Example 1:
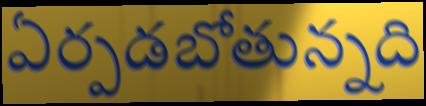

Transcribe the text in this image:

ఏర్పడబోతున్నది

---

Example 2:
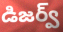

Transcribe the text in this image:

డిజర్వ్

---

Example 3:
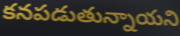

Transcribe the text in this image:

కనపడుతున్నాయని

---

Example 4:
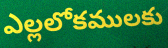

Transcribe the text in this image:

ఎల్లలోకములకు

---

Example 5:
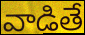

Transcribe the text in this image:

వాడితే